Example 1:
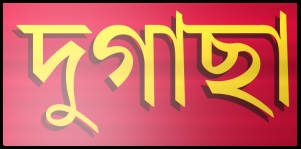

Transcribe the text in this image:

দুগাছা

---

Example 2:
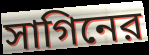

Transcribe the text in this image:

সাগিনের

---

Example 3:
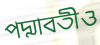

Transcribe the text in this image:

পদ্মাবতীও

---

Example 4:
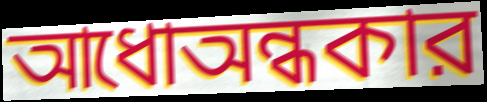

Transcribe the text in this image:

আধোঅন্ধকার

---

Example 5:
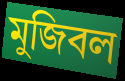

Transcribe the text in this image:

মুজিবল